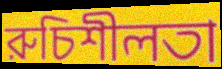
রুচিশীলতা